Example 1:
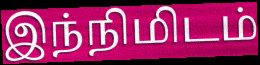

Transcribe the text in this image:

இந்நிமிடம்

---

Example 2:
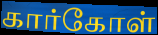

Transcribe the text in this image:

கார்கோள்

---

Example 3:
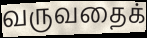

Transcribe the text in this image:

வருவதைக்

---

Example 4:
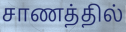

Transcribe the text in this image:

சாணத்தில்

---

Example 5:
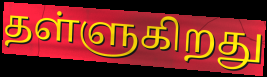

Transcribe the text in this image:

தள்ளுகிறது